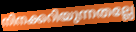
നിനക്കറിയുന്നതല്ലേ